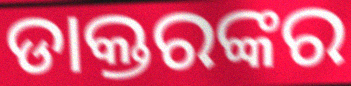
ଡାକ୍ତରଙ୍କର